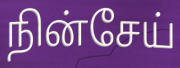
நின்சேய்